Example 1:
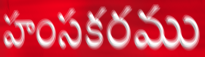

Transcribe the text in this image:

హంసకరము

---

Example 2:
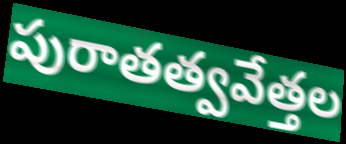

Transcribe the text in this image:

పురాతత్వవేత్తల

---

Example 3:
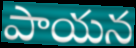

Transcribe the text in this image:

పాయన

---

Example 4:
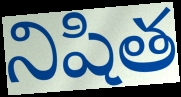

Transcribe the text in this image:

నిషిత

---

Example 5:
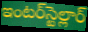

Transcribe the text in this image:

ఇంటర్‌స్టెల్లార్